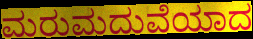
ಮರುಮದುವೆಯಾದ